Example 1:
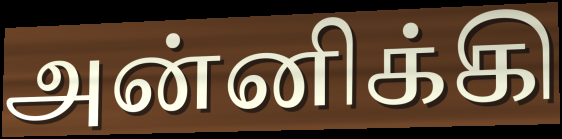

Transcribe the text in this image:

அன்னிக்கி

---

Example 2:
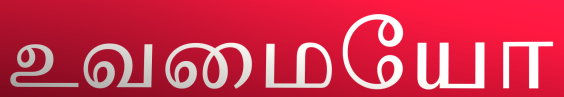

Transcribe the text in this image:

உவமையோ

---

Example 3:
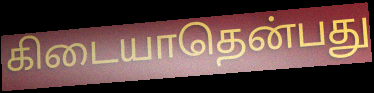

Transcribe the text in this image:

கிடையாதென்பது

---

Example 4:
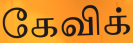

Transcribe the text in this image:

கேவிக்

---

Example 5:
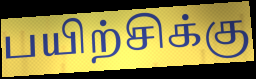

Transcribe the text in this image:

பயிற்சிக்கு